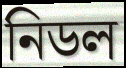
নিডল